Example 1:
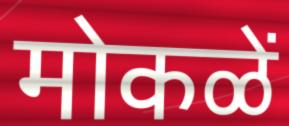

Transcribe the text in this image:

मोकळें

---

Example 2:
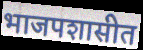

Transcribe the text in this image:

भाजपशासीत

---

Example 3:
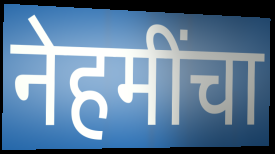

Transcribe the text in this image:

नेहमींचा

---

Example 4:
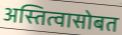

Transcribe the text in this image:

अस्तित्वासोबत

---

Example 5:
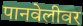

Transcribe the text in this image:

पानवेलीवर